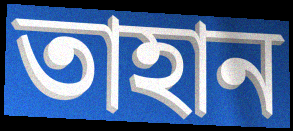
তাহান